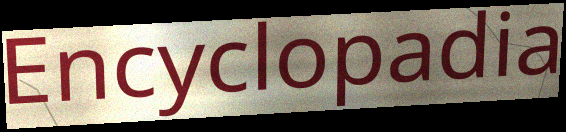
Encyclopadia